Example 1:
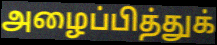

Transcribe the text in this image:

அழைப்பித்துக்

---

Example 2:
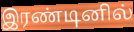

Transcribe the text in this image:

இரண்டினில்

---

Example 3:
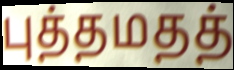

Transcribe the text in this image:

புத்தமதத்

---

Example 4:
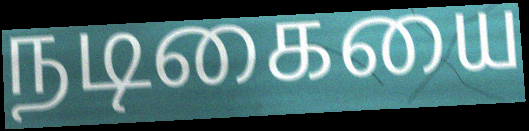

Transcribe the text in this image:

நடிகையை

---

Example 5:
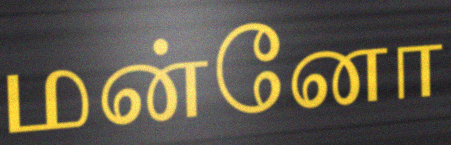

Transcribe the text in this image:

மன்னோ